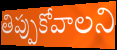
తిప్పుకోవాలని